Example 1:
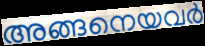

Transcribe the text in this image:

അങ്ങനെയവർ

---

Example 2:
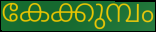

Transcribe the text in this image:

കേക്കുമ്പം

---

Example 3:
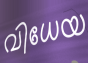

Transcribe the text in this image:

വിധേയ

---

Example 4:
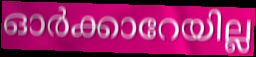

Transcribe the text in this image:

ഓർക്കാറേയില്ല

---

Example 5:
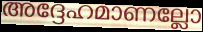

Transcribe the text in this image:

അദ്ദേഹമാണല്ലോ